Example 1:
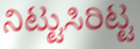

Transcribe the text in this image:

ನಿಟ್ಟುಸಿರಿಟ್ಟ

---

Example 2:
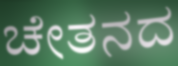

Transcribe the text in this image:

ಚೇತನದ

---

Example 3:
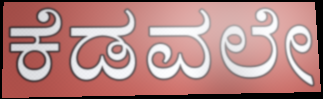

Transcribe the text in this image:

ಕೆಡವಲೇ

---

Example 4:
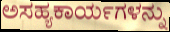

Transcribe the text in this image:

ಅಸಹ್ಯಕಾರ್ಯಗಳನ್ನು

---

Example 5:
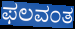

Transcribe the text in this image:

ಫಲವಂತ